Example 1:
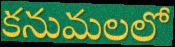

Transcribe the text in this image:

కనుమలలో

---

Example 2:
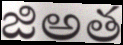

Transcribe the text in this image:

జిఅత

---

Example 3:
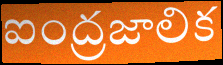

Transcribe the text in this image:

ఐంద్రజాలిక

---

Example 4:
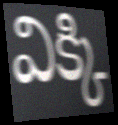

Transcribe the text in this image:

విక్కి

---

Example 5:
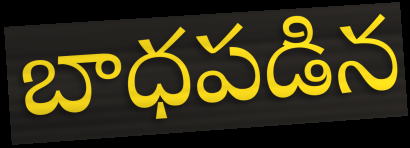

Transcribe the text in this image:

బాధపడిన